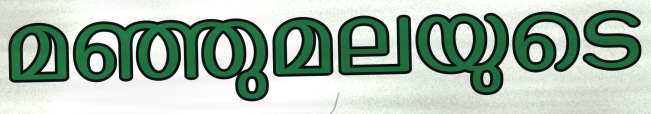
മഞ്ഞുമലയുടെ